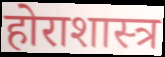
होराशास्त्र